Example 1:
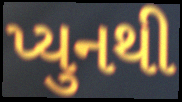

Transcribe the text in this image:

પ્યુનથી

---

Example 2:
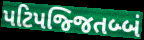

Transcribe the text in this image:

પટિપજ્જિતબ્બં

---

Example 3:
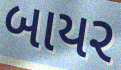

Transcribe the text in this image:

બાયર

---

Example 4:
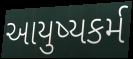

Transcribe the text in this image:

આયુષ્યકર્મ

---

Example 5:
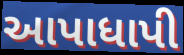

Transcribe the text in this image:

આપાધાપી